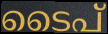
ടൈപ്